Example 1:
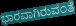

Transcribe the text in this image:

ಭಾರವಾಗಿರುವಂತೆ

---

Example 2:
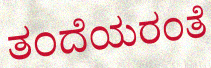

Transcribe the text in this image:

ತಂದೆಯರಂತೆ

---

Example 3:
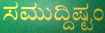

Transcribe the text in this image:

ಸಮುದ್ದಿಷ್ಟಂ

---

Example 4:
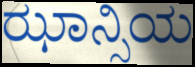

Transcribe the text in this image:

ಝಾನ್ಸಿಯ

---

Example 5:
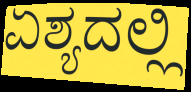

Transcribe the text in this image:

ಏಶ್ಯದಲ್ಲಿ